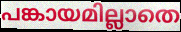
പങ്കായമില്ലാതെ